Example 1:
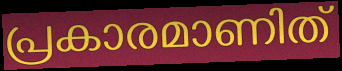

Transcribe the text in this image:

പ്രകാരമാണിത്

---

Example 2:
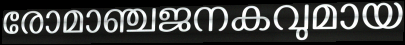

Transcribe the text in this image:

രോമാഞ്ചജനകവുമായ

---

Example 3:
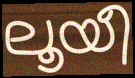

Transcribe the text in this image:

ലൂയീ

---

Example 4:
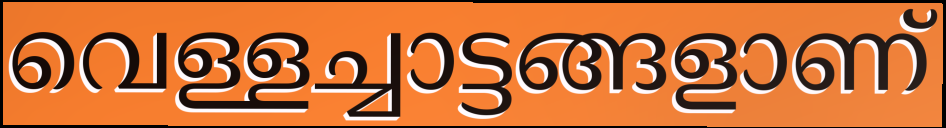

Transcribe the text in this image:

വെള്ളച്ചാട്ടങ്ങളാണ്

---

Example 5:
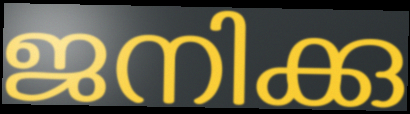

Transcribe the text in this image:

ജനിക്കു